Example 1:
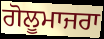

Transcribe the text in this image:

ਗੋਲੂਮਾਜਰਾ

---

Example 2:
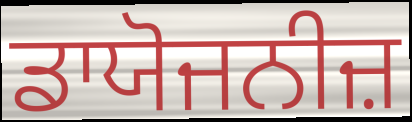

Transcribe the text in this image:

ਡਾਯੋਜਨੀਜ਼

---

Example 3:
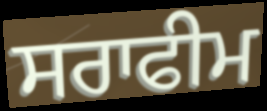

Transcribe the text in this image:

ਸਰਾਫੀਮ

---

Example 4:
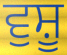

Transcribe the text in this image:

ਵੁਸ਼ੂ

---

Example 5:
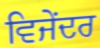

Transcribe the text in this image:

ਵਿਜੇਂਦਰ